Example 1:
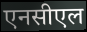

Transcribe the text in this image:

एनसीएल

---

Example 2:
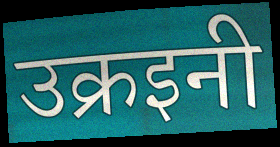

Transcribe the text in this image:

उक्रइनी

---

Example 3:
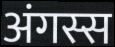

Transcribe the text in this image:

अंगस्स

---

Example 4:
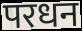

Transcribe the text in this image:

परधन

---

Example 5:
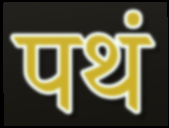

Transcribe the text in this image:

पथं